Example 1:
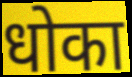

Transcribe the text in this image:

धोका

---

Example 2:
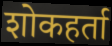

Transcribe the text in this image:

शोकहर्ता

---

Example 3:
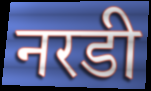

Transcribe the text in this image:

नरडी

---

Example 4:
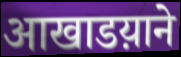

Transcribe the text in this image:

आखाडय़ाने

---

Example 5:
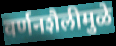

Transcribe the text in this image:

वर्णनशैलीमुळे